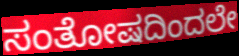
ಸಂತೋಷದಿಂದಲೇ